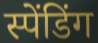
स्पेंडिंग